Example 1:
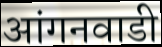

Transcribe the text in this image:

आंगनवाडी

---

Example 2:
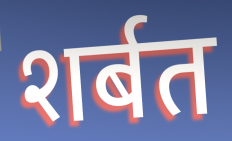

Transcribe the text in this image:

शर्बत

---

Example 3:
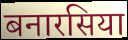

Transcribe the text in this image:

बनारसिया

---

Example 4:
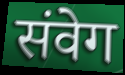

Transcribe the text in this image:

संवेग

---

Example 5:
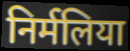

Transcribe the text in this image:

निर्मलिया